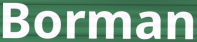
Borman